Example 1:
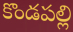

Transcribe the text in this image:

కొండపల్లి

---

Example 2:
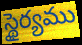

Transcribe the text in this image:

స్థైర్యము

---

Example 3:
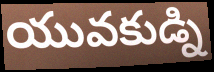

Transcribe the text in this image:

యువకుడ్ని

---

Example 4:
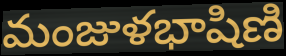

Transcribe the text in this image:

మంజుళభాషిణి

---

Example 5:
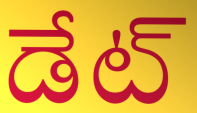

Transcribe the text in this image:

డేట్